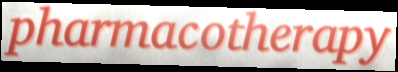
pharmacotherapy